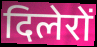
दिलेरों